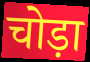
चोड़ा